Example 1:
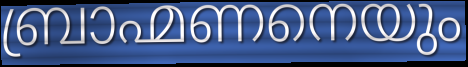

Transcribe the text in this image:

ബ്രാഹ്മണനെയും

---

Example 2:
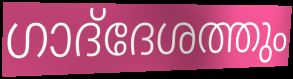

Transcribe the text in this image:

ഗാദ്‌ദേശത്തും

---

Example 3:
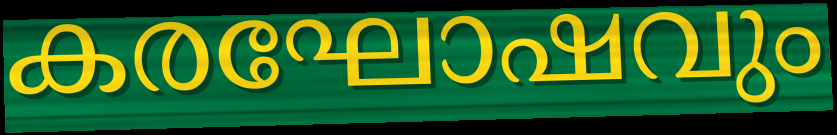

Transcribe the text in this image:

കരഘോഷവും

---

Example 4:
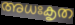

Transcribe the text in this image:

അധഃകൃത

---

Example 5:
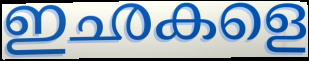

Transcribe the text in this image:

ഇഛകളെ